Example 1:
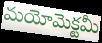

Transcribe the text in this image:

మయోమెక్టమీ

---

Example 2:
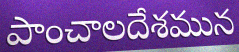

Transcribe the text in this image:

పాంచాలదేశమున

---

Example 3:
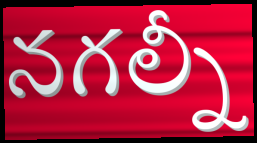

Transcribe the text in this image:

నగల్నీ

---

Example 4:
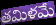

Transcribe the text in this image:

తమిళమే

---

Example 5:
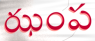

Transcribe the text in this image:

ఝంప